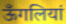
ऊँगलियां